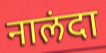
नालंदा